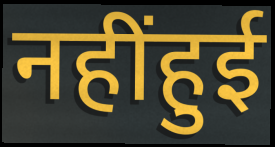
नहींहुई